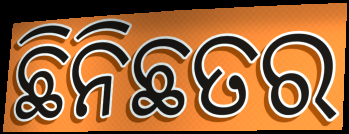
ଛିନିଛତର